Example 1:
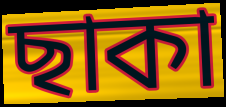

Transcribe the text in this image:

ছাকা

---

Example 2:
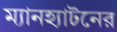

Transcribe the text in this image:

ম্যানহ্যাটনের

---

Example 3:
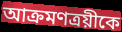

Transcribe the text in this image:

আক্রমণত্রয়ীকে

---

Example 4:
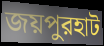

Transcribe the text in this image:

জয়পুরহাট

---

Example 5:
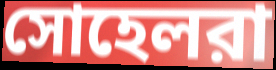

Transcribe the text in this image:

সোহেলরা